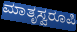
ಮಾತೃಸ್ವರೂಪಿ